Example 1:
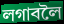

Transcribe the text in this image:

লগাবলৈ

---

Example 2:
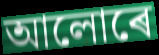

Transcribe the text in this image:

আলোৰে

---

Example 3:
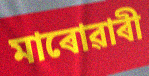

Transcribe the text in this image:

মাৰোৱাৰী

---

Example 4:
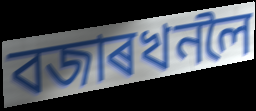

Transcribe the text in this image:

বজাৰখনলৈ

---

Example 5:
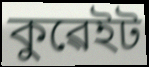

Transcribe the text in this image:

কুৱেইট